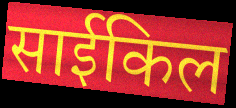
साईकिल